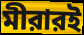
মীরারই